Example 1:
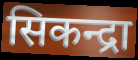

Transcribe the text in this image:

सिकन्द्रा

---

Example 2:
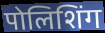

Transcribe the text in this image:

पोलिशिंग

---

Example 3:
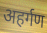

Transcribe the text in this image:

अहर्गण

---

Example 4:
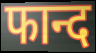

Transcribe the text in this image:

फान्द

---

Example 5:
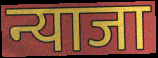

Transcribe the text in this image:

न्याजा